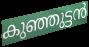
കുഞ്ഞുട്ടൻ